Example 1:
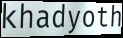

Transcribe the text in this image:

khadyoth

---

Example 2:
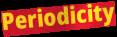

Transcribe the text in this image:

Periodicity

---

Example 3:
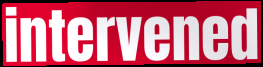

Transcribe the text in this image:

intervened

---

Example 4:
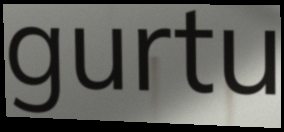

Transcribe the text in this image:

gurtu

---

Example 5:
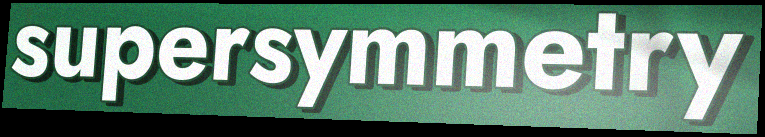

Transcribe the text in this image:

supersymmetry